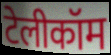
टेलीकॉम